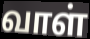
வாள்